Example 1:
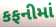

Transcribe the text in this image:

કફનીમાં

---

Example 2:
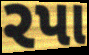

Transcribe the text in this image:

રપા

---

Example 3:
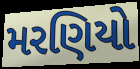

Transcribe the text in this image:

મરણિયો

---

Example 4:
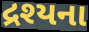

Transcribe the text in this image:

દ્રશ્યના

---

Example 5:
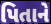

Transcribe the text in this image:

પિતાને